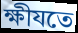
ক্ষীযতে